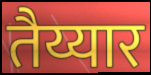
तैय्यार